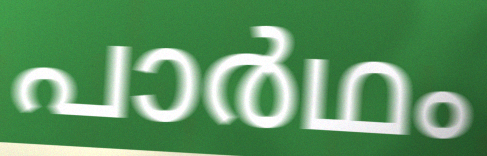
പാർഥം